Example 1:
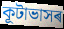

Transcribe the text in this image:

কূটাভাসৰ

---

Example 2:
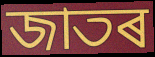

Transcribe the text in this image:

জাতৰ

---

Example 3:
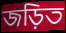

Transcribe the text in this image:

জড়িত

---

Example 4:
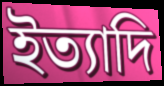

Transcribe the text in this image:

ইত্যাদি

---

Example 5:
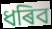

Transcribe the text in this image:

ধৰিব